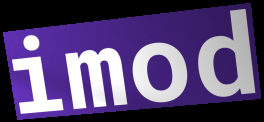
imod